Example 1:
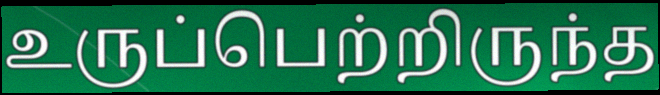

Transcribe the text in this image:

உருப்பெற்றிருந்த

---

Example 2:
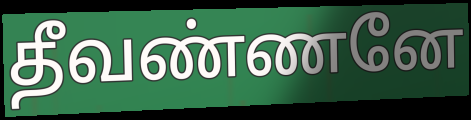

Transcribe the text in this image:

தீவண்ணனே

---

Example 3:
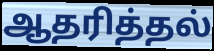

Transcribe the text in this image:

ஆதரித்தல்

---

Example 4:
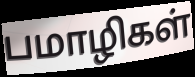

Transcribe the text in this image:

பமாழிகள்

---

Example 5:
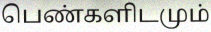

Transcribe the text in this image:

பெண்களிடமும்